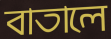
বাতালে